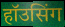
हॉउसिंग